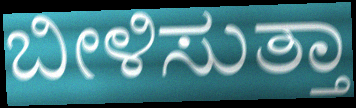
ಬೀಳಿಸುತ್ತಾ